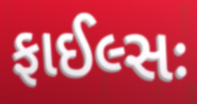
ફાઈલ્સઃ